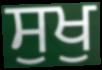
ਸੁਖੁ